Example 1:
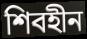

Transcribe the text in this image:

শিবহীন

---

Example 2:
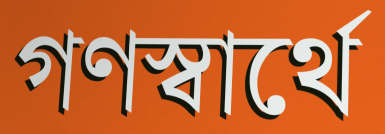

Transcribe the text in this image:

গণস্বার্থে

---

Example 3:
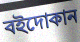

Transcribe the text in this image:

বইদোকান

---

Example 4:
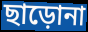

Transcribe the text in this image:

ছাড়োনা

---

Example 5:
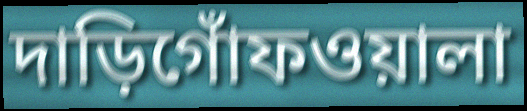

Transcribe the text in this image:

দাড়িগোঁফওয়ালা